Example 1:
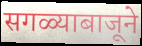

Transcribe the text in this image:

सगळ्याबाजूने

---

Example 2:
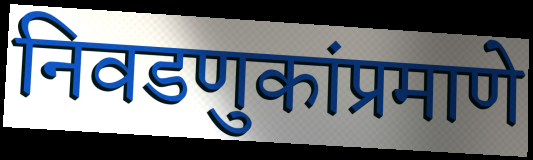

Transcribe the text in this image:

निवडणुकांप्रमाणे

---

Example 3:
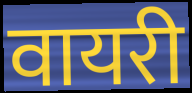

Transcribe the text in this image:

वायरी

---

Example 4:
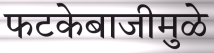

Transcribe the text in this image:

फटकेबाजीमुळे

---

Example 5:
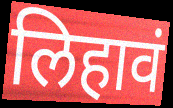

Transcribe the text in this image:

लिहावं